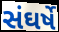
સંઘર્ષે